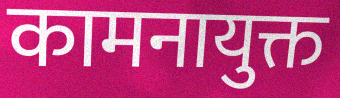
कामनायुक्त